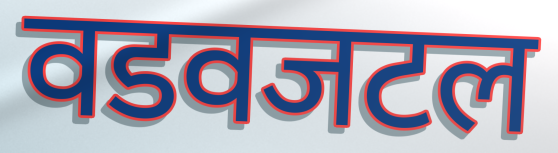
वडवजटल